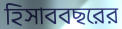
হিসাববছরের